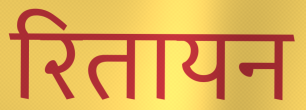
रितायन